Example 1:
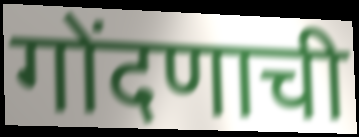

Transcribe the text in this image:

गोंदणाची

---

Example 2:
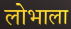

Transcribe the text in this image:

लोभाला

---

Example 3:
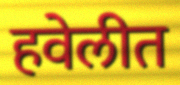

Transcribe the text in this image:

हवेलीत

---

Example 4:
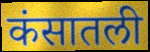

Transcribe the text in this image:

कंसातली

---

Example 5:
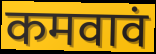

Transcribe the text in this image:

कमवावं